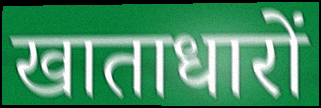
खाताधारों